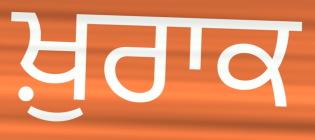
ਖ਼ੁਰਾਕ